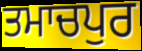
ਤਮਾਚਪੁਰ